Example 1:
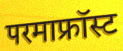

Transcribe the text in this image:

परमाफ्रॉस्ट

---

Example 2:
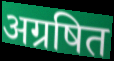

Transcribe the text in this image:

अग्रषित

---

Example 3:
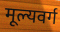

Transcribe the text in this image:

मूल्यवर्ग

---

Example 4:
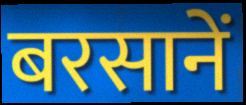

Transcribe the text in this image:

बरसानें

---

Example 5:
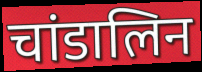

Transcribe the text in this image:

चांडालिन